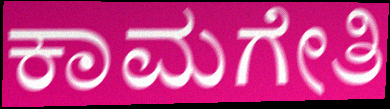
ಕಾಮಗೇತಿ